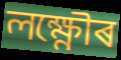
লক্ষ্ণৌৰ